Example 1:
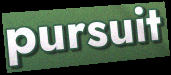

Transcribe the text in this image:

pursuit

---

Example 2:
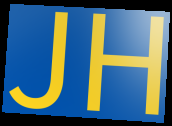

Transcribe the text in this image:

JH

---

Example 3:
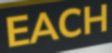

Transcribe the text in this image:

EACH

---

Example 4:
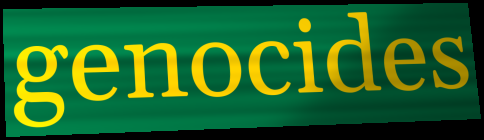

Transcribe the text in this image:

genocides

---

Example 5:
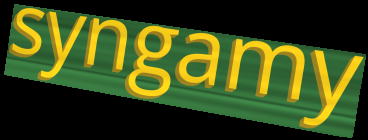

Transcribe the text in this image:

syngamy